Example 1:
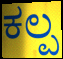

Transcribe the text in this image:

ಕಲ್ಪ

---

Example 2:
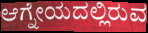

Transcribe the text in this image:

ಆಗ್ನೇಯದಲ್ಲಿರುವ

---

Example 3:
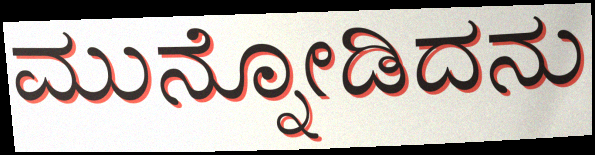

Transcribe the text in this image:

ಮುನ್ನೋಡಿದನು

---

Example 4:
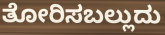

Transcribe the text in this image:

ತೋರಿಸಬಲ್ಲುದು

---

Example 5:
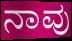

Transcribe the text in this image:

ನಾವು